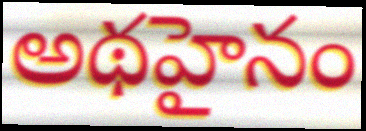
అథహైనం